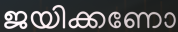
ജയിക്കണോ